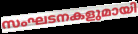
സംഘടനകളുമായി